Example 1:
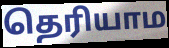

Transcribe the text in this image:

தெரியாம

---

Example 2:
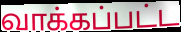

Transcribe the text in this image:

வாக்கப்பட்ட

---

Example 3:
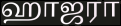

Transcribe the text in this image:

ஹாஜரா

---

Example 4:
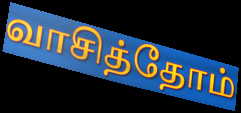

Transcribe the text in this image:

வாசித்தோம்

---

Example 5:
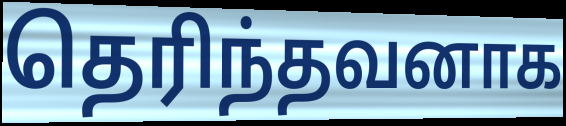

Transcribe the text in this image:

தெரிந்தவனாக